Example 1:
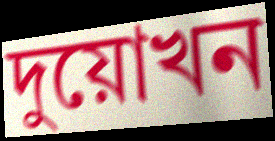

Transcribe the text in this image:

দুয়োখন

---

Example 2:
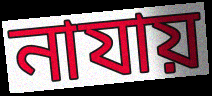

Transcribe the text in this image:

নাযায়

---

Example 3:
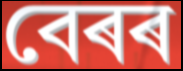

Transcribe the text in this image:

বেৰৰ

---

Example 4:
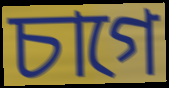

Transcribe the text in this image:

চাগে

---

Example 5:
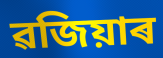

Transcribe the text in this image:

ৱজিয়াৰ